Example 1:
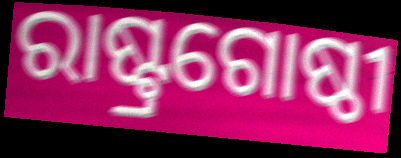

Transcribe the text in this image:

ରାଷ୍ଟ୍ରଗୋଷ୍ଠୀ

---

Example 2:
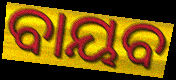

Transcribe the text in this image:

ବାୟବ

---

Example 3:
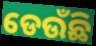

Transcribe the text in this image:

ଡେଉଁଛି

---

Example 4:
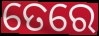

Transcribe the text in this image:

ତେରେ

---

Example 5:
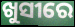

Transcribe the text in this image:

ଖୁସୀରେ